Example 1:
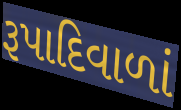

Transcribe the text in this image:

રૂપાદિવાળાં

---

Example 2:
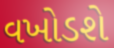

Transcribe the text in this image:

વખોડશે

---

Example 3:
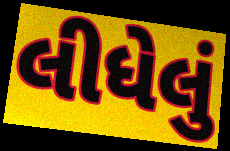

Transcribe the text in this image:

લીધેલું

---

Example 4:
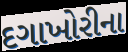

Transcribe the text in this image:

દગાખોરીના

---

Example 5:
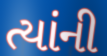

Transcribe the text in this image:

ત્યાંની